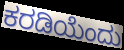
ಕರಡಿಯೆಂದು